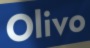
Olivo